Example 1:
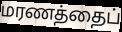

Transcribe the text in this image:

மரணத்தைப்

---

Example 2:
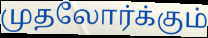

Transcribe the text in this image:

முதலோர்க்கும்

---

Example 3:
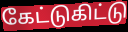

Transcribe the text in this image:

கேட்டுகிட்டு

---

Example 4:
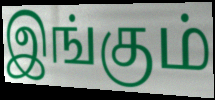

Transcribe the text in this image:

இங்கும்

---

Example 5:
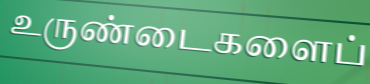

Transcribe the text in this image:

உருண்டைகளைப்